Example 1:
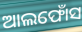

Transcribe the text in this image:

ଆଲଫୋଁସ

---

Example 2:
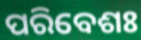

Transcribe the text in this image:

ପରିବେଶଃ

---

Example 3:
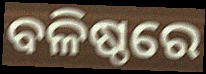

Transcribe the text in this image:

ବଳିଷ୍ଠରେ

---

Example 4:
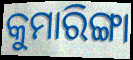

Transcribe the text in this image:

କୁମାରିଙ୍ଗା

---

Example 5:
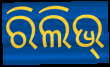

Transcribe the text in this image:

ରିଲିଭ୍